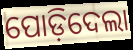
ପୋଡ଼ିଦେଲା